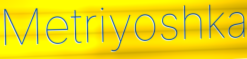
Metriyoshka